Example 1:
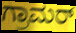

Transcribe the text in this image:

ಗ್ರಾಮರ್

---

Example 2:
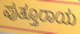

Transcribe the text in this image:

ಪುತ್ತೂರಾಯ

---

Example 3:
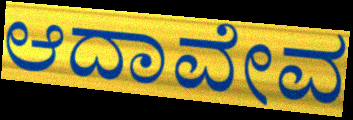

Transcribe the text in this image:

ಆದಾವೇವ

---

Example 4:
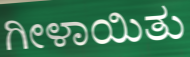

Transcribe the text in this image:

ಗೀಳಾಯಿತು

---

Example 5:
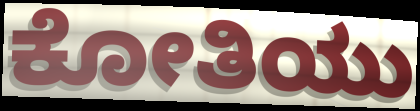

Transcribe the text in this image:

ಕೋತಿಯು